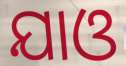
ଯାଓ